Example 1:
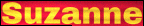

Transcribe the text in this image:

Suzanne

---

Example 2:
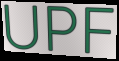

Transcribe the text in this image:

UPF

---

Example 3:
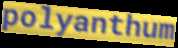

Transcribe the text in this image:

polyanthum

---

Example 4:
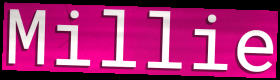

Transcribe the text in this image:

Millie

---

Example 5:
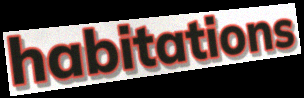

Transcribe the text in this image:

habitations